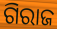
ଗିରାଜ